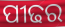
ପୀଢର